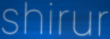
shirur